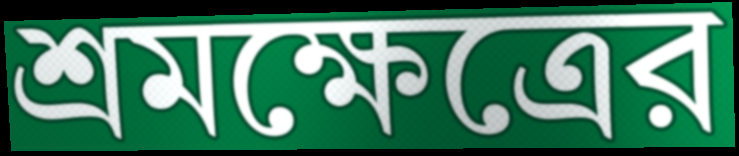
শ্রমক্ষেত্রের